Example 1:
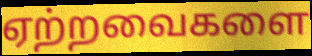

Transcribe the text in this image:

ஏற்றவைகளை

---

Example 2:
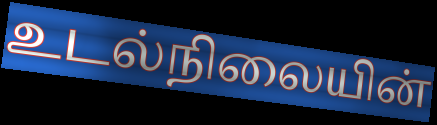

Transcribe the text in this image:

உடல்நிலையின்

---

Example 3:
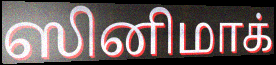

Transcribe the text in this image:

ஸினிமாக்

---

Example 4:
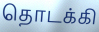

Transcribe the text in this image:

தொடக்கி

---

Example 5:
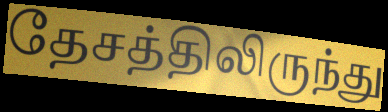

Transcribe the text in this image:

தேசத்திலிருந்து